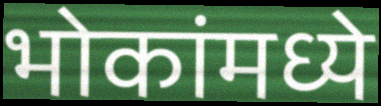
भोकांमध्ये